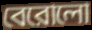
বেরোলো